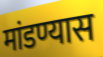
मांडण्यास